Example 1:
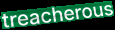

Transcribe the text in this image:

treacherous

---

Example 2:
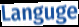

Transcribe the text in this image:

Languge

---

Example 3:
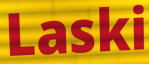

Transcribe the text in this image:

Laski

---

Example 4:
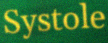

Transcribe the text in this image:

Systole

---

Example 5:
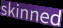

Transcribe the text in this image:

skinned